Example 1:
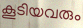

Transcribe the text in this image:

കൂടിയവരും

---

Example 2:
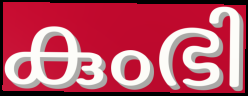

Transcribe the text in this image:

കുംഭി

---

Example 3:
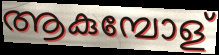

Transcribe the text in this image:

ആകുമ്പോള്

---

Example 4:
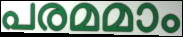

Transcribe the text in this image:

പരമമാം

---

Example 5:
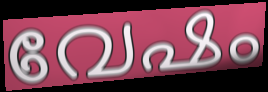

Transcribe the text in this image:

വേഷം